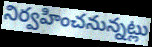
నిర్వహించనున్నట్లు